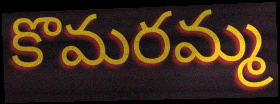
కొమరమ్మ